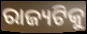
ରାଜ୍ୟଟିକୁ